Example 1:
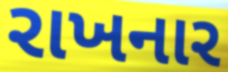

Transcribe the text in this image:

રાખનાર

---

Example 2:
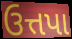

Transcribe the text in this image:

ઉત્તપા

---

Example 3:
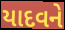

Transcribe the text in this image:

યાદવને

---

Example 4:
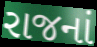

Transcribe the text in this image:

રાજનાં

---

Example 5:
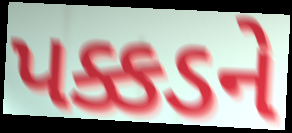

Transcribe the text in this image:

પક્કડને